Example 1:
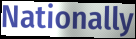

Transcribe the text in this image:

Nationally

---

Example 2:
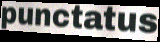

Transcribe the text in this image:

punctatus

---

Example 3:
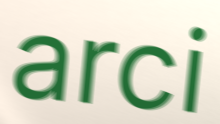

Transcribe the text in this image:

arci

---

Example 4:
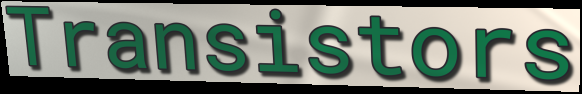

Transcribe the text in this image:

Transistors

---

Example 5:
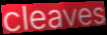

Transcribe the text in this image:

cleaves